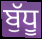
ਬੁੱਧੂ